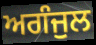
ਅਗੰਜੁਲ